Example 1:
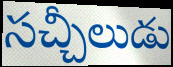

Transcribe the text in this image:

సచ్చీలుడు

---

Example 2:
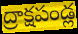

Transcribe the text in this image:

ద్రాక్షపండ్ల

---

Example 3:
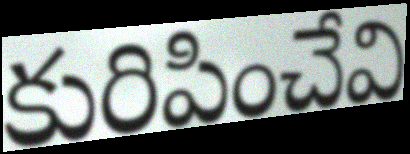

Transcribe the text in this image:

కురిపించేవి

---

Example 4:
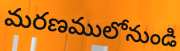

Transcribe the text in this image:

మరణములోనుండి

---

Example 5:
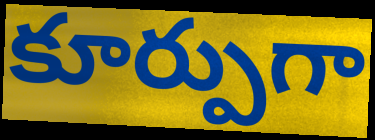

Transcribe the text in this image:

కూర్పుగా